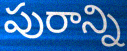
పురాన్ని